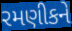
રમણીકને